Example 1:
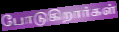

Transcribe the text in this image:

போடுகிறார்கள்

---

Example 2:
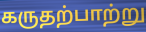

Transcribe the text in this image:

கருதற்பாற்று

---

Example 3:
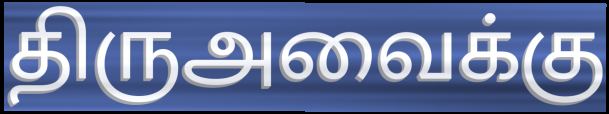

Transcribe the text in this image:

திருஅவைக்கு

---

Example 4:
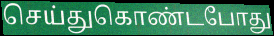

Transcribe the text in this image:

செய்துகொண்டபோது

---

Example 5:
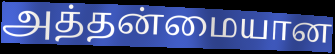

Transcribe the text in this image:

அத்தன்மையான